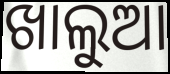
ଖାଲୁଆ